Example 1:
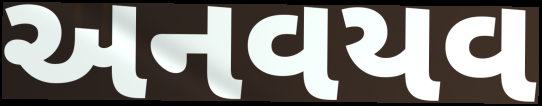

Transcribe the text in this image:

અનવયવ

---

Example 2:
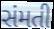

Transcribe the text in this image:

સંમતી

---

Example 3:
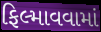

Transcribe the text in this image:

ફિલ્માવવામાં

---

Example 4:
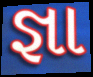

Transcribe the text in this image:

જ્ઞા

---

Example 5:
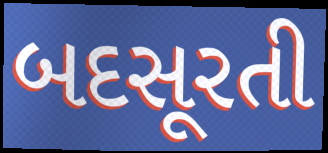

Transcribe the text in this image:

બદસૂરતી